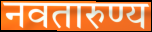
नवतारुण्य